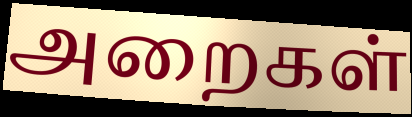
அறைகள்